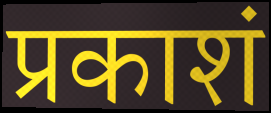
प्रकाशं